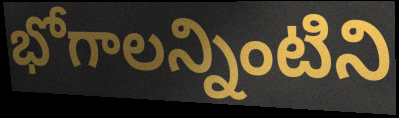
భోగాలన్నింటిని